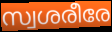
സ്വശരീരേ